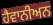
ਹੈਵਾਨੀਅਨ